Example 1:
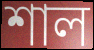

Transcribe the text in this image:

শাল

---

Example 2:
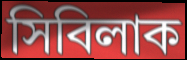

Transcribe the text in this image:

সিবিলাক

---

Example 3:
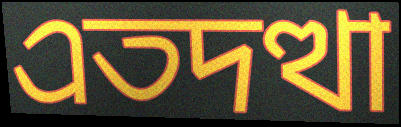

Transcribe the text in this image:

এতদত্থা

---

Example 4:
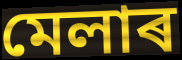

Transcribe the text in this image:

মেলাৰ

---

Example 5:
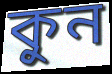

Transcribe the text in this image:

কুন